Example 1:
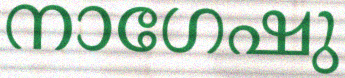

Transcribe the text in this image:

നാഗേഷു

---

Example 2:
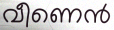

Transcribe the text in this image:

വീണെൻ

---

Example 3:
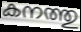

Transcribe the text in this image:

കനത്തു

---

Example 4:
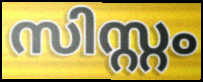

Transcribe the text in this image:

സിസ്റ്റം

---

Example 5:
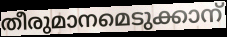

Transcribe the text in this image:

തീരുമാനമെടുക്കാന്